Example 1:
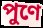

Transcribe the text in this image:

পুণে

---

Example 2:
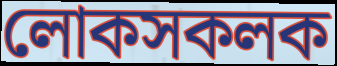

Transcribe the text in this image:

লোকসকলক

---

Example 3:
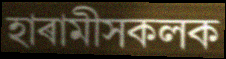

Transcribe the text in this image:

হাৰামীসকলক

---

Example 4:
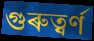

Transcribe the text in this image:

গুৰুত্ৱৰ্ণ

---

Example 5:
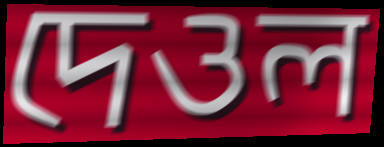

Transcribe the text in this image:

দেওল